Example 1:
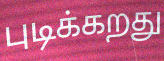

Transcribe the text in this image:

புடிக்கறது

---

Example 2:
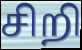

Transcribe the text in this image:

சிறி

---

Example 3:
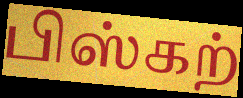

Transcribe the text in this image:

பிஸ்கற்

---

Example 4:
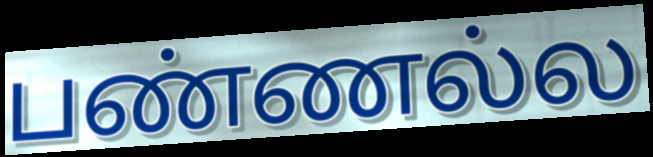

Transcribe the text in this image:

பண்ணல்ல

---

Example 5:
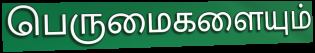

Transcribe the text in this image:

பெருமைகளையும்